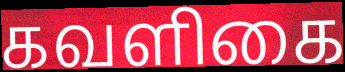
கவளிகை